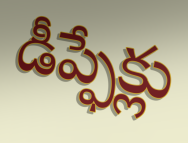
డీప్ఫేక్లు